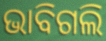
ଭାବିଗଲି